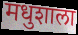
मधुशाला